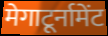
मेगाटूर्नामेंट